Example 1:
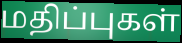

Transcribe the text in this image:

மதிப்புகள்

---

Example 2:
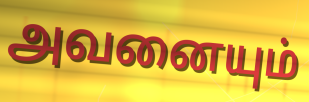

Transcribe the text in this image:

அவனையும்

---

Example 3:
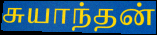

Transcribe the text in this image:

சுயாந்தன்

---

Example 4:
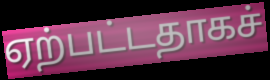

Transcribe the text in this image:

ஏற்பட்டதாகச்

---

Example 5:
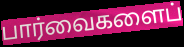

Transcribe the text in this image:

பார்வைகளைப்